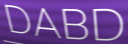
DABD